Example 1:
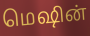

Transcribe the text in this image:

மெஷின்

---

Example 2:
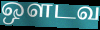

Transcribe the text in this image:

ஔடவ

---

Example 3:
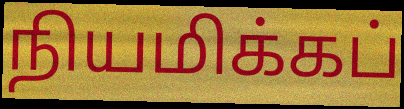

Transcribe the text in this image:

நியமிக்கப்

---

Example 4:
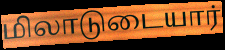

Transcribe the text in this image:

மிலாடுடையார்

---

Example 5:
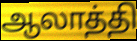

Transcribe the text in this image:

ஆலாத்தி